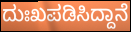
ದುಃಖಪಡಿಸಿದ್ದಾನೆ